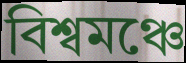
বিশ্বমঞ্চে